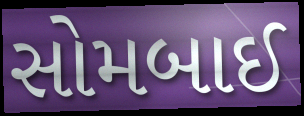
સોમબાઈ